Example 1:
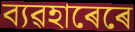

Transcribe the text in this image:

ব্যৱহাৰেৰে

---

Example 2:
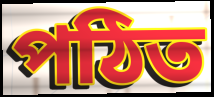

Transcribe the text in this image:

পঠিত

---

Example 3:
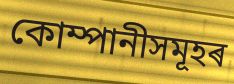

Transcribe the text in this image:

কোম্পানীসমূহৰ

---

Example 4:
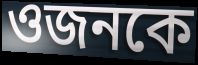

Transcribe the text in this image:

ওজনকে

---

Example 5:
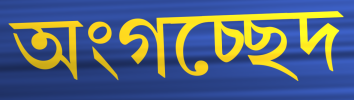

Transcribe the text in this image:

অংগচ্ছেদ